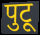
पुटू